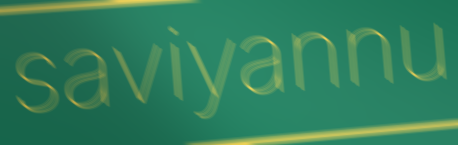
saviyannu